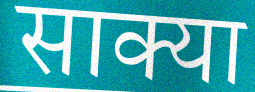
साक्या